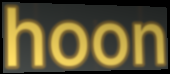
hoon